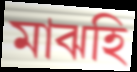
মাঝহি